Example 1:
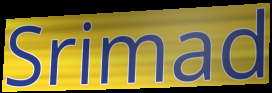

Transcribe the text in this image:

Srimad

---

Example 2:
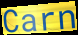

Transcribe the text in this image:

Carn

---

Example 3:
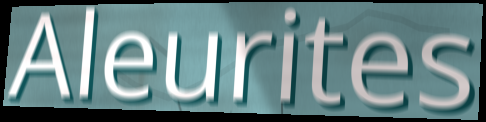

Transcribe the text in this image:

Aleurites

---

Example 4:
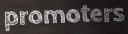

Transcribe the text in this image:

promoters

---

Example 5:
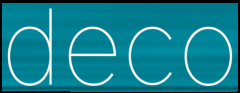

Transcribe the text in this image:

deco